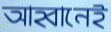
আহ্বানেই